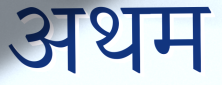
अथम